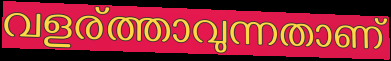
വളര്ത്താവുന്നതാണ്